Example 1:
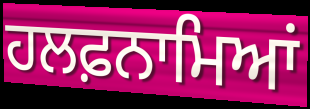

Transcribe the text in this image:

ਹਲਫ਼ਨਾਮਿਆਂ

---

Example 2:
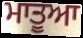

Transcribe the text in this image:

ਮਾਤੂਆ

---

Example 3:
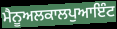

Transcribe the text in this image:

ਮੈਨੂਅਲਕਾਲਪੁਆਇੰਟ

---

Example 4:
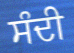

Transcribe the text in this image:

ਸੰਦੀ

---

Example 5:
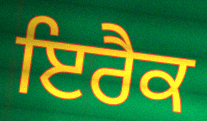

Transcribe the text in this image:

ਇਰੈਕ